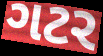
ગટર